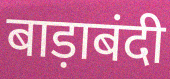
बाड़ाबंदी